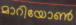
മാറിയോൺ